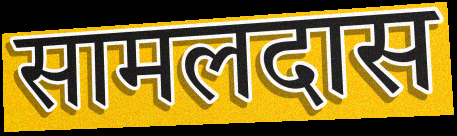
सामलदास